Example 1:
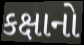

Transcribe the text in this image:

કક્ષાનો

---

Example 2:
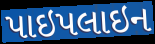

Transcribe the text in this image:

પાઇપલાઇન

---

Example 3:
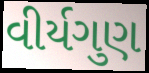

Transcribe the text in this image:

વીર્યગુણ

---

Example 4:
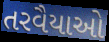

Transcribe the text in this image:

તરવૈયાઓ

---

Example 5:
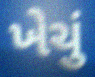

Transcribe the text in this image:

ખેચું